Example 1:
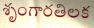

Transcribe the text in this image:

శృంగారతిలక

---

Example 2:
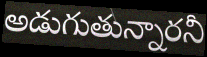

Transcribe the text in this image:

అడుగుతున్నారనీ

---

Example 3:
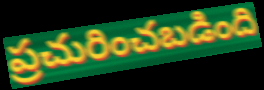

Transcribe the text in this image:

ప్రచురించబడింది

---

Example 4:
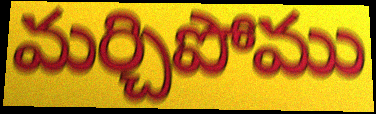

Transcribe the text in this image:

మర్చిపోము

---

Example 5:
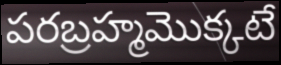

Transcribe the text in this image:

పరబ్రహ్మమొక్కటే